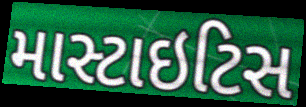
માસ્ટાઇટિસ